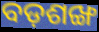
ବଡ଼ଶଙ୍ଖ